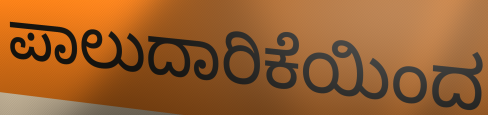
ಪಾಲುದಾರಿಕೆಯಿಂದ